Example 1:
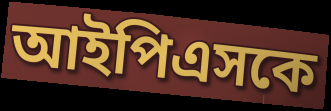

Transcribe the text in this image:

আইপিএসকে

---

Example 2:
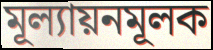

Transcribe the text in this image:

মূল্যায়নমূলক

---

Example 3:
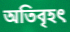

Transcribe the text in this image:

অতিবৃহৎ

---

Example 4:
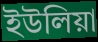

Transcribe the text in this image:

ইউলিয়া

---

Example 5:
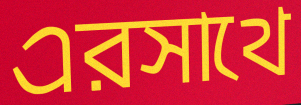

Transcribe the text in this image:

এরসাথে